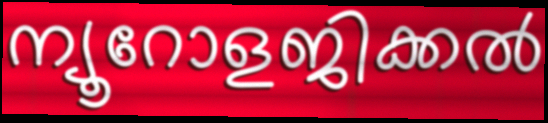
ന്യൂറോളജിക്കൽ